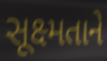
સૂક્ષ્મતાને